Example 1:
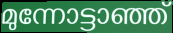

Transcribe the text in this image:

മുന്നോട്ടാഞ്ഞ്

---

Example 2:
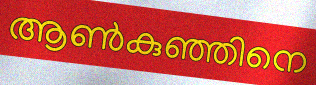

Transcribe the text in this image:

ആൺകുഞ്ഞിനെ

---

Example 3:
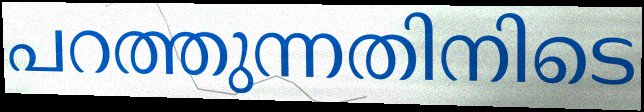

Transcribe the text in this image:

പറത്തുന്നതിനിടെ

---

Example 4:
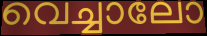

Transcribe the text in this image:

വെച്ചാലോ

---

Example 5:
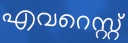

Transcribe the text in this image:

എവറെസ്റ്റ്